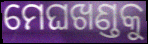
ମେଘଖଣ୍ଡକୁ